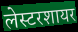
लेस्टरशायर